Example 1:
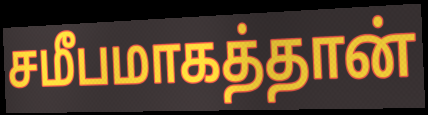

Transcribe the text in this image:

சமீபமாகத்தான்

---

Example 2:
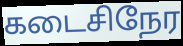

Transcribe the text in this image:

கடைசிநேர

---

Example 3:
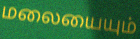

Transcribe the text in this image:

மலையையும்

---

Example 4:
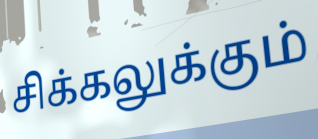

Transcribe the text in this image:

சிக்கலுக்கும்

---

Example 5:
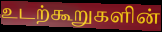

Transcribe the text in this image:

உடற்கூறுகளின்